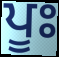
ਪੂਃ